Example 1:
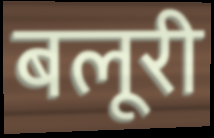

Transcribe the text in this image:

बलूरी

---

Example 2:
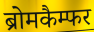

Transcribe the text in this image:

ब्रोमकैम्फर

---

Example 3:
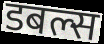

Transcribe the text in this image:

डबल्‍स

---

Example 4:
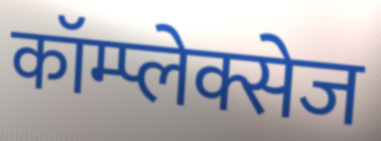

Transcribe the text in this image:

कॉम्प्लेक्सेज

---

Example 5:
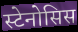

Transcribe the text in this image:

स्टेनोसिस